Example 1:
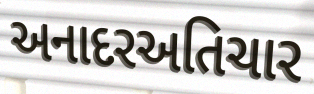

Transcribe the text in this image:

અનાદરઅતિચાર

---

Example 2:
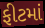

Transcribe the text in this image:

ફીટમાં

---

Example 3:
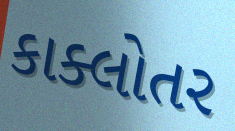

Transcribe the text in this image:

કાક્લોતર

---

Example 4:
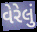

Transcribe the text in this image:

વેરેલું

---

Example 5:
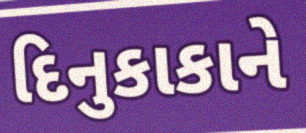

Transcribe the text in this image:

દિનુકાકાને